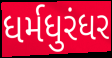
ધર્મધુરંધર